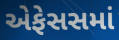
એફેસસમાં